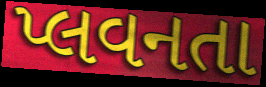
પ્લવનતા